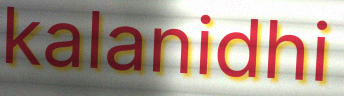
kalanidhi